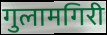
गुलामगिरी